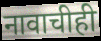
नावाचीही